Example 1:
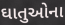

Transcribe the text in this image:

ઘાતુઓના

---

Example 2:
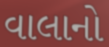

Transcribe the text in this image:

વાલાનો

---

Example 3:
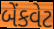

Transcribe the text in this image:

બેંકવેટ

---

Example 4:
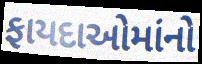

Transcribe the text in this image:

ફાયદાઓમાંનો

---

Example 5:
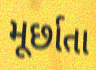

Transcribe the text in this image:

મૂર્છાતા